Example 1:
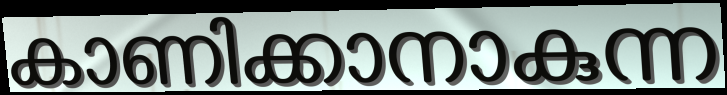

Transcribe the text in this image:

കാണിക്കാനാകുന്ന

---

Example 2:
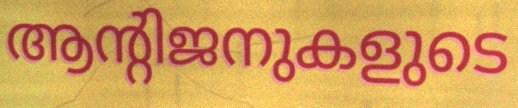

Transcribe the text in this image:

ആന്റിജനുകളുടെ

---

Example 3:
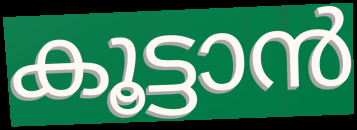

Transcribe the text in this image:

കൂട്ടാൻ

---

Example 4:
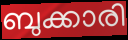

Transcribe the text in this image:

ബുക്കാരി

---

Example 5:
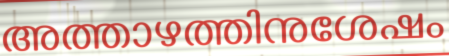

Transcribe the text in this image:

അത്താഴത്തിനുശേഷം